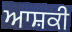
ਆਸ਼ਕੀ